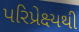
પરિપ્રેક્ષ્યથી